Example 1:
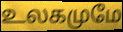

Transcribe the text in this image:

உலகமுமே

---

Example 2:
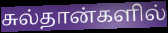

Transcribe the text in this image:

சுல்தான்களில்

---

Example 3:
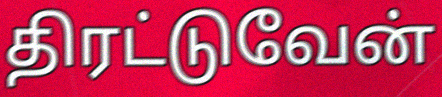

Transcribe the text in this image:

திரட்டுவேன்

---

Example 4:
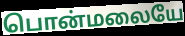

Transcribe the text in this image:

பொன்மலையே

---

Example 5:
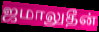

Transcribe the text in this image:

ஜமாலுதீன்